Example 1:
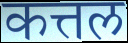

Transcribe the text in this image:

कत्तल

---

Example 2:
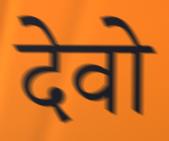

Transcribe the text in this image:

देवो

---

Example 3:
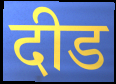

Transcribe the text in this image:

दीड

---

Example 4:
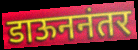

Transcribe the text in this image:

डाऊननंतर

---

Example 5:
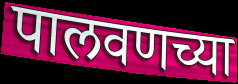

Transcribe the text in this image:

पालवणच्या